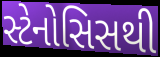
સ્ટેનોસિસથી